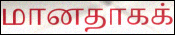
மானதாகக்